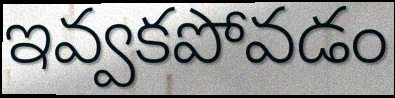
ఇవ్వకపోవడం